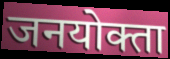
जनयोक्ता